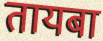
तायबा